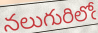
నలుగురిలోఁ